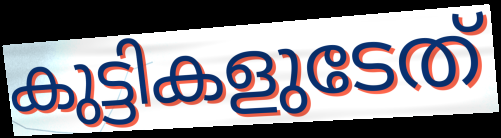
കുട്ടികളുടേത്